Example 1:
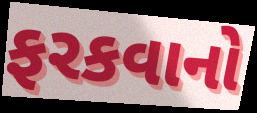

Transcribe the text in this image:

ફરકવાનો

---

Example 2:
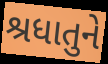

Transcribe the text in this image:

શ્રધાતુને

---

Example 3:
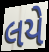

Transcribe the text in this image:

લયે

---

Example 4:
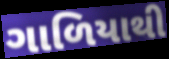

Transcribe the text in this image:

ગાળિયાથી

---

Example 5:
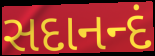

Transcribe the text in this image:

સદાનન્દં